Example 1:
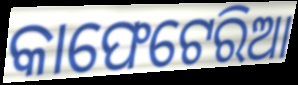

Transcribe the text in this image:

କାଫେଟେରିଆ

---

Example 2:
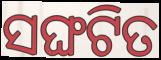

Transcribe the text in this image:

ସଙ୍ଘଟିତ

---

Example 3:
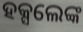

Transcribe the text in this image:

ହକ୍ସଲେଙ୍କ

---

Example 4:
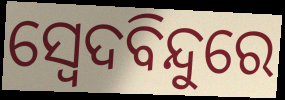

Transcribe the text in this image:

ସ୍ୱେଦବିନ୍ଦୁରେ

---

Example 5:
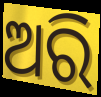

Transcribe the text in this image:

ଅରି